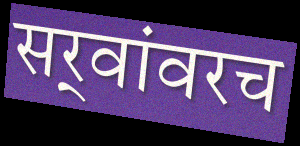
सर्वांवरच